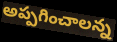
అప్పగించాలన్న